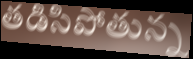
తడిసిపోతున్న